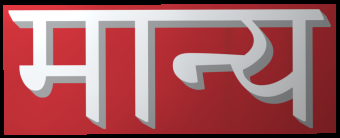
मान्य